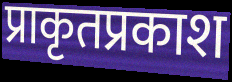
प्राकृतप्रकाश